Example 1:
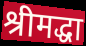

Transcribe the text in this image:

श्रीमद्धा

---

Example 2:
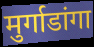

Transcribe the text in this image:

मुर्गाडांगा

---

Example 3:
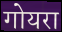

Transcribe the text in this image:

गोयरा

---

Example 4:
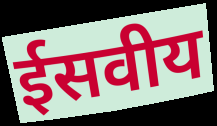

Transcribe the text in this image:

ईसवीय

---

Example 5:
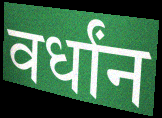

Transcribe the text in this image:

वर्धांन